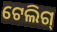
ଟେଲିଗ୍